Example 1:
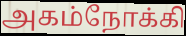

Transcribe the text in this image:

அகம்நோக்கி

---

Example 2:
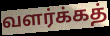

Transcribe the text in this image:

வளர்க்கத்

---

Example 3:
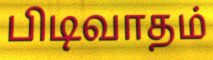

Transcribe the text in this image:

பிடிவாதம்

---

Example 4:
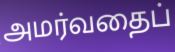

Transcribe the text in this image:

அமர்வதைப்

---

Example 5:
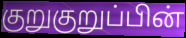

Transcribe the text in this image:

குறுகுறுப்பின்